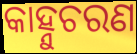
କାହ୍ନୁଚରଣ